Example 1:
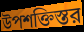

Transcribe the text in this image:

উপশক্তিস্তর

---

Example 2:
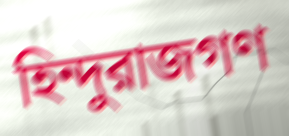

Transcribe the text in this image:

হিন্দুরাজগণ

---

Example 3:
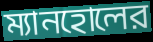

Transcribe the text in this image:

ম্যানহোলের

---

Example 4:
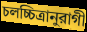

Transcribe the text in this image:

চলচ্চিত্রানুরাগী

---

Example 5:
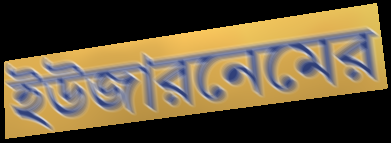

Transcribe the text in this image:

ইউজারনেমের